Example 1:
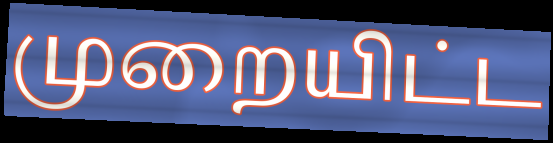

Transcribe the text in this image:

முறையிட்ட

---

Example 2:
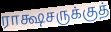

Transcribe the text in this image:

ராக்ஷசருக்குத்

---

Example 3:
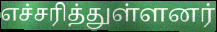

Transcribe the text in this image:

எச்சரித்துள்ளனர்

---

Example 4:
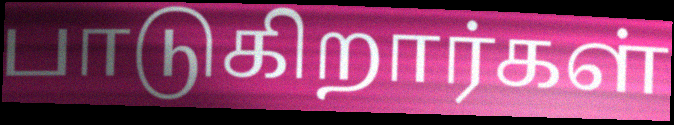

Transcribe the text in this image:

பாடுகிறார்கள்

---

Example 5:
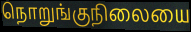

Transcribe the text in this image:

நொறுங்குநிலையை